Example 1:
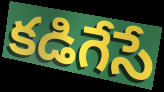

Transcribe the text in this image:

కడిగేసే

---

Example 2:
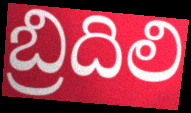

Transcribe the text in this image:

బ్రిదిలి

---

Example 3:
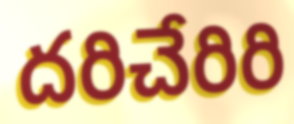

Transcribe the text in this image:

దరిచేరిరి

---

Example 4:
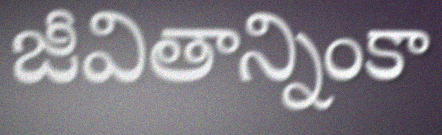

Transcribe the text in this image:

జీవితాన్నింకా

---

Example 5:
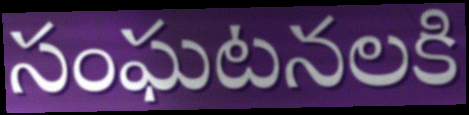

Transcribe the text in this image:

సంఘటనలకి